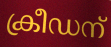
ക്രീഡന്